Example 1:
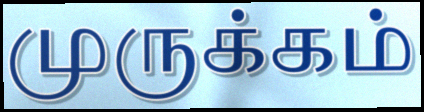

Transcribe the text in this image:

முருக்கம்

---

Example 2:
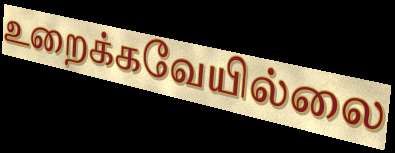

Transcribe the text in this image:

உறைக்கவேயில்லை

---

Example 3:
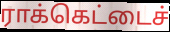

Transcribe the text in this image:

ராக்கெட்டைச்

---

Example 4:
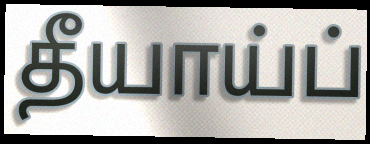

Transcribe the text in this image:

தீயாய்ப்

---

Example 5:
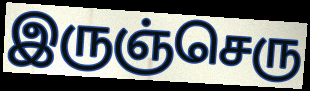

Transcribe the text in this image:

இருஞ்செரு